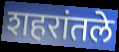
शहरांतले